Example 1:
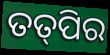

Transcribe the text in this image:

ତତ୍‌ପିର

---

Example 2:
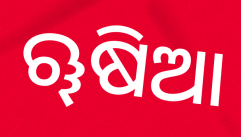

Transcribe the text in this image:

ୠଷିଆ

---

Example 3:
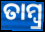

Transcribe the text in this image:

ତାମ୍ବ୍ର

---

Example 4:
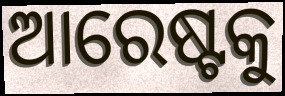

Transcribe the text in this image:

ଆରେଷ୍ଟକୁ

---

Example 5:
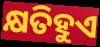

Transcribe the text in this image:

କ୍ଷତିହୁଏ